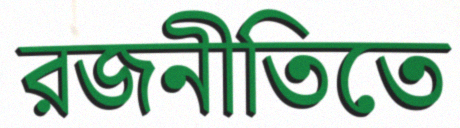
রজনীতিতে